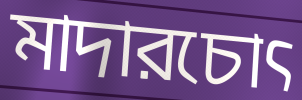
মাদারচোৎ